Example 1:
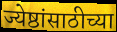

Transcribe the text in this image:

ज्येष्ठांसाठीच्या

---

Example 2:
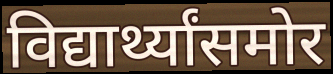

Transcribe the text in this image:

विद्यार्थ्यांसमोर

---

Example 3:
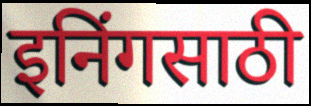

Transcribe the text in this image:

इनिंगसाठी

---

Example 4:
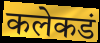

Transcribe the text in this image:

कलेकडं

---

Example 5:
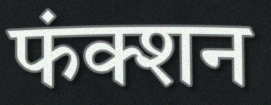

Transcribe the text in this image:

फंक्शन